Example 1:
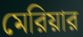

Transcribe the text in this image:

মেরিয়ার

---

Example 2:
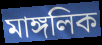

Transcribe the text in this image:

মাঙ্গলিক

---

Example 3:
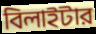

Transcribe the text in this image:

বিলাইটার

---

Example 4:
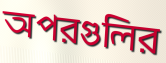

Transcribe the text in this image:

অপরগুলির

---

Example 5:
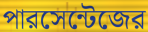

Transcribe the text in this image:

পারসেন্টেজের